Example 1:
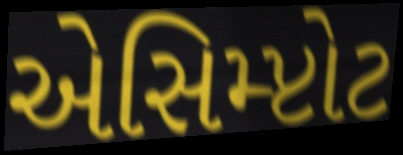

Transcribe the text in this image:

એસિમ્પ્ટોટ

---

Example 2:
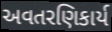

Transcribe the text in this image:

અવતરણિકાર્ય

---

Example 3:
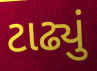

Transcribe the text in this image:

ટાઢ્યું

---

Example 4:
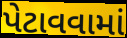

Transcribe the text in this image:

પેટાવવામાં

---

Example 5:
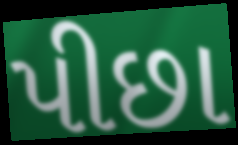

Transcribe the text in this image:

પીછા